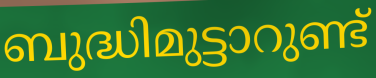
ബുദ്ധിമുട്ടാറുണ്ട്